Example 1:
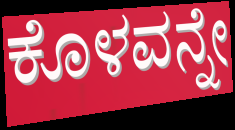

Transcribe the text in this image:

ಕೊಳವನ್ನೇ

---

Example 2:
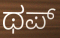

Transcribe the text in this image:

ಥಪ್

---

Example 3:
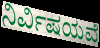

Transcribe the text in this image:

ನಿರ್ವಿಷಯವೆ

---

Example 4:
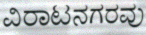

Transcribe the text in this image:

ವಿರಾಟನಗರವು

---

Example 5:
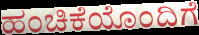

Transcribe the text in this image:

ಹಂಚಿಕೆಯೊಂದಿಗೆ